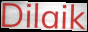
Dilaik